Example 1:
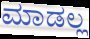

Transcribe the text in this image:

ಮಾಡಲ್ಲ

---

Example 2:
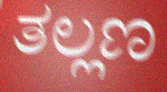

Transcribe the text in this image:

ತಲ್ಲಣ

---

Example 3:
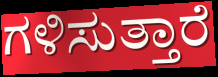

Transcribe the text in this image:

ಗಳಿಸುತ್ತಾರೆ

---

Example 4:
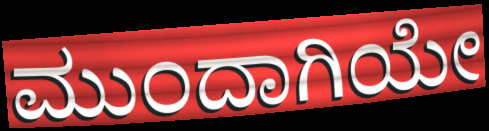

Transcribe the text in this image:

ಮುಂದಾಗಿಯೇ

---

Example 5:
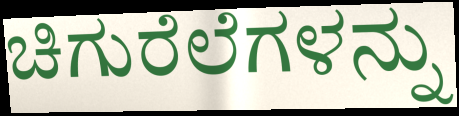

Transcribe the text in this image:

ಚಿಗುರೆಲೆಗಳನ್ನು